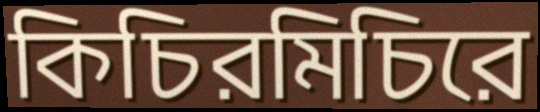
কিচিরমিচিরে